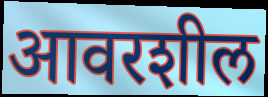
आवरशील